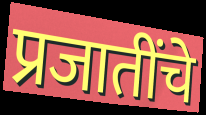
प्रजातींचे